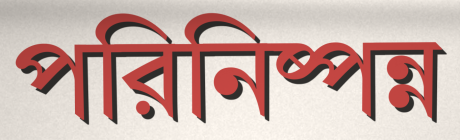
পরিনিষ্পন্ন